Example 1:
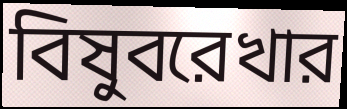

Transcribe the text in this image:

বিষুবরেখার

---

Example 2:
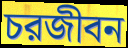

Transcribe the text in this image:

চরজীবন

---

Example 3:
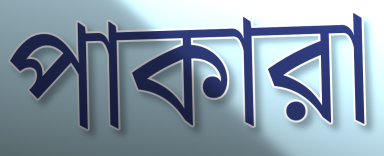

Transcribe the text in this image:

পাকারা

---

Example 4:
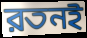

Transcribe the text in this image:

রতনই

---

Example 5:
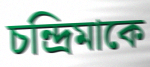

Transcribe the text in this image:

চন্দ্রিমাকে